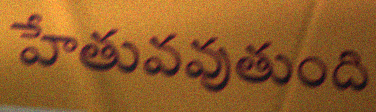
హేతువవుతుంది